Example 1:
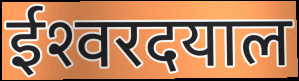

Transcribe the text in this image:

ईश्वरदयाल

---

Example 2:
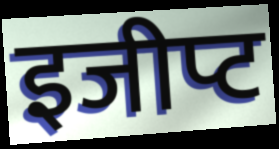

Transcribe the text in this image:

इजीप्ट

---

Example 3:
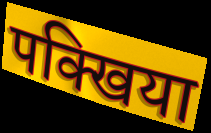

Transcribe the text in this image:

पक्खिया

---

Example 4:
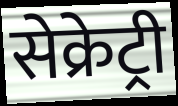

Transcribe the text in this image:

सेक्रेट्री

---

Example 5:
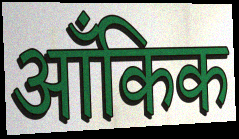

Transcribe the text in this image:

आँकिक